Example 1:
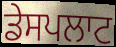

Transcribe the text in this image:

ਡੇਸਪਲਾਟ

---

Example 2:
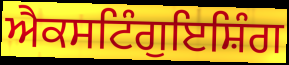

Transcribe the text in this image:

ਐਕਸਟਿੰਗੁਇਸ਼ਿੰਗ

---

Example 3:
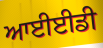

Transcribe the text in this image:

ਆਈਈਡੀ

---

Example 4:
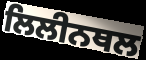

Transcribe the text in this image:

ਲਿਲੀਨਥਲ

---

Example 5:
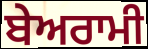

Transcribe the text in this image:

ਬੇਅਰਾਮੀ